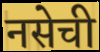
नसेची